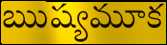
ఋష్యమూక